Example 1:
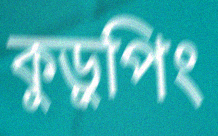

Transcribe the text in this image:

কুড়ুপিং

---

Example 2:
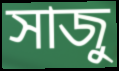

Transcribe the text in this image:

সাজু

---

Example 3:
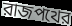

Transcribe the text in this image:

রাজপথের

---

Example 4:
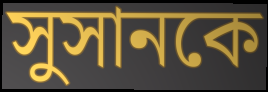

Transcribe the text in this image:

সুসানকে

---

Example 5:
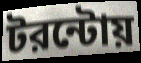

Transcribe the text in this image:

টরন্টোয়